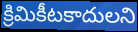
క్రిమికీటకాదులని